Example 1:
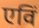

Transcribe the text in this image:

एविं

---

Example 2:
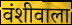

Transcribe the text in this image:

वंशीवाला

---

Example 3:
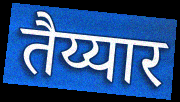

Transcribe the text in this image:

तैय्यार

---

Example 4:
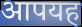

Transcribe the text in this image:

आपयह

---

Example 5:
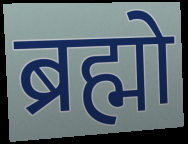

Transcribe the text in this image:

ब्रह्मो